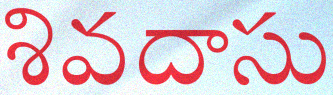
శివదాసు